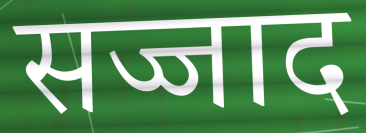
सज्जाद